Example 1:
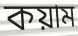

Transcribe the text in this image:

কয়াম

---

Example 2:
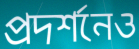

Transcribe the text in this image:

প্রদর্শনেও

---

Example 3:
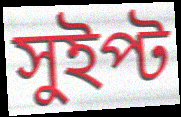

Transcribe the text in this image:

সুইপ্ট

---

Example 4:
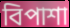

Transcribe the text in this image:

বিপাশা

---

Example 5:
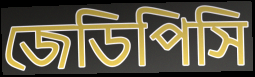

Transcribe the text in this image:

জেডিপিসি